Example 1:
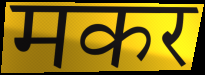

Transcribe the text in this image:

मकर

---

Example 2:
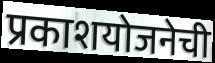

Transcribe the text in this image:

प्रकाशयोजनेची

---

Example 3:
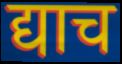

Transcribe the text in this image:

द्याच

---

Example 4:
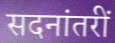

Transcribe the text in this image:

सदनांतरीं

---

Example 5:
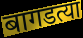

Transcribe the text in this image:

बागडत्या